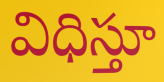
విధిస్తూ